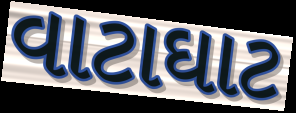
વાટાઘાટ